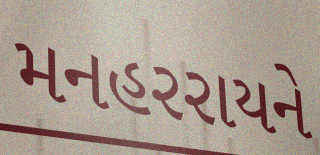
મનહરરાયને